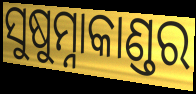
ସୁଷୁମ୍ନାକାଣ୍ଡର